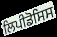
ਲਿਪੀਡੋਸਿਸ